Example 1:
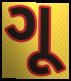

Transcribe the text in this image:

ગૂ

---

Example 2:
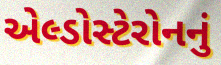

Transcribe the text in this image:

એલ્ડોસ્ટેરોનનું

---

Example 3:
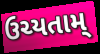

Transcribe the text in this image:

ઉચ્યતામ્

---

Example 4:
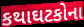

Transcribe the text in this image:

કથાઘટકોના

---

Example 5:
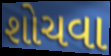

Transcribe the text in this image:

શોચવા